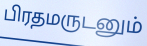
பிரதமருடனும்